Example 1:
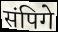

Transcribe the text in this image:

संपिगे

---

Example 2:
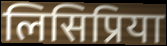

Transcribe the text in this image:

लिसिप्रिया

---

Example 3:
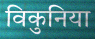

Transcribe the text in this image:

विकुनिया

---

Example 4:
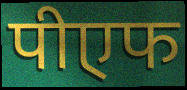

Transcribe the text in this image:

पीएफ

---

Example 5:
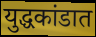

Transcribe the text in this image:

युद्धकांडात